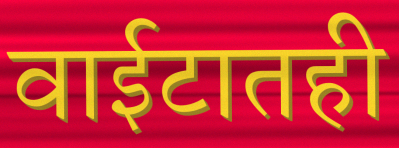
वाईटातही